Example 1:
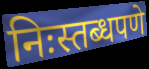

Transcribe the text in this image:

निःस्तब्धपणे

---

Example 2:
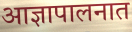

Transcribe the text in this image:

आज्ञापालनात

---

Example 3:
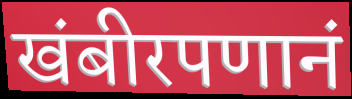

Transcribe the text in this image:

खंबीरपणानं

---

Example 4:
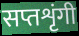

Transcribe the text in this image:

सप्तशृंगी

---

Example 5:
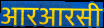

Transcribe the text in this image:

आरआरसी